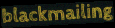
blackmailing